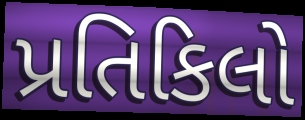
પ્રતિકિલો